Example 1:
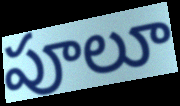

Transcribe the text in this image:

పూలూ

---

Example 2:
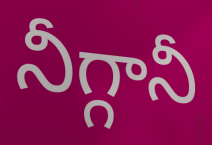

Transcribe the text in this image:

నీగ్గానీ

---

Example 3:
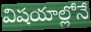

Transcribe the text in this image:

విషయాల్లోనే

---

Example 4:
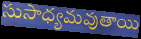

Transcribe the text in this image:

సుసాధ్యమవుతాయి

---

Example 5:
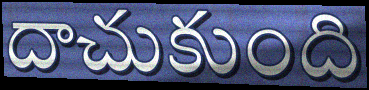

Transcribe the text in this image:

దాచుకుంది